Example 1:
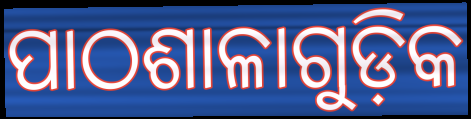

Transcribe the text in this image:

ପାଠଶାଳାଗୁଡ଼ିକ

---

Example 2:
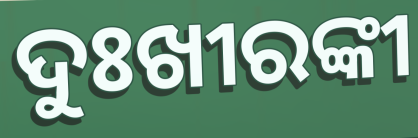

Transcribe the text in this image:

ଦୁଃଖୀରଙ୍କୀ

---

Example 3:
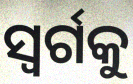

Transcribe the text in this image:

ସ୍ୱର୍ଗକୁ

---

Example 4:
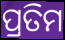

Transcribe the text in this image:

ପ୍ରତିମ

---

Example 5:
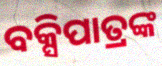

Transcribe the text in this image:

ବକ୍ସିପାତ୍ରଙ୍କ